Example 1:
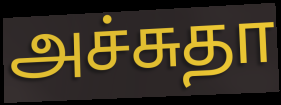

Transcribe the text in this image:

அச்சுதா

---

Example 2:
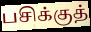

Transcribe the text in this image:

பசிக்குத்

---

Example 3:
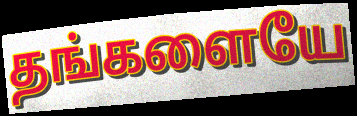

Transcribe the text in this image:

தங்களையே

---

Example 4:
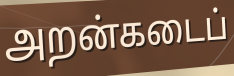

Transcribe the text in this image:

அறன்கடைப்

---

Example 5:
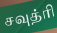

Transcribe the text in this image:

சவுத்ரி